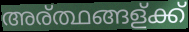
അര്ത്ഥങ്ങള്ക്ക്